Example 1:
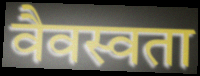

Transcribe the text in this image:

वैवस्वता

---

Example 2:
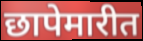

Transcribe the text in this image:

छापेमारीत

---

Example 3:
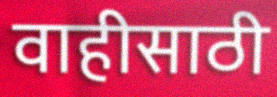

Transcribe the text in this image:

वाहीसाठी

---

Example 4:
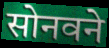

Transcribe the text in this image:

सोनवने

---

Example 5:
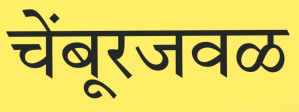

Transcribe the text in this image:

चेंबूरजवळ